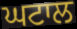
ਘਟਾਲ